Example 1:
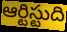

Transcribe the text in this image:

ఆర్టిస్టుది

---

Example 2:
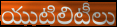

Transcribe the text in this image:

యుటిలిటీలు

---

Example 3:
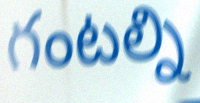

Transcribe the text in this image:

గంటల్ని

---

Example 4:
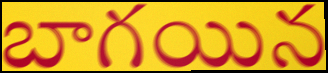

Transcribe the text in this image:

బాగయిన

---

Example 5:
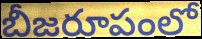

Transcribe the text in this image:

బీజరూపంలో